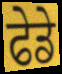
ਫੇਡੇ